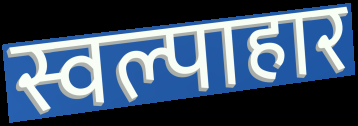
स्‍वल्‍पाहार